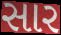
સાર